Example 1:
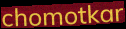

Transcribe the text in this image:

chomotkar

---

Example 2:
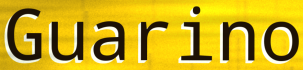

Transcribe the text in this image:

Guarino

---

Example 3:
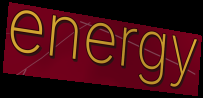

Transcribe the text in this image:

energy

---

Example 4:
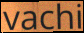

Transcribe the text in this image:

vachi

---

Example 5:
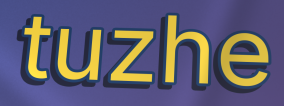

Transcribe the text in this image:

tuzhe